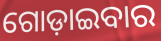
ଗୋଡ଼ାଇବାର